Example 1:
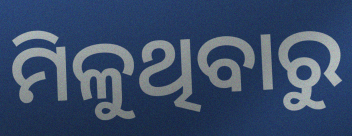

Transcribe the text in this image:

ମିଳୁଥିବାରୁ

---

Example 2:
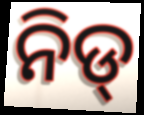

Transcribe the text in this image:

ନିଡ୍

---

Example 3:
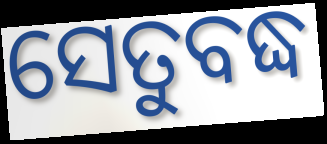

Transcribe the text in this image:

ସେତୁବଦ୍ଧ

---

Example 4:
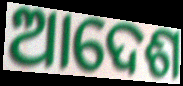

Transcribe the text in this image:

ଆଦେଶ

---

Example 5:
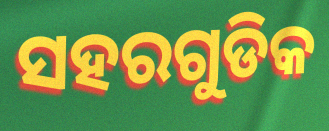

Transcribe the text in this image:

ସହରଗୁଡିକ